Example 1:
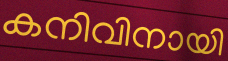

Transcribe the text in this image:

കനിവിനായി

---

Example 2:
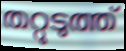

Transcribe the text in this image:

തറ്റുടുത്ത്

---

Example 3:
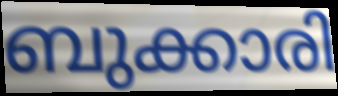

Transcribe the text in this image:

ബുക്കാരി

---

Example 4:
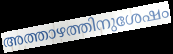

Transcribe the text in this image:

അത്താഴത്തിനുശേഷം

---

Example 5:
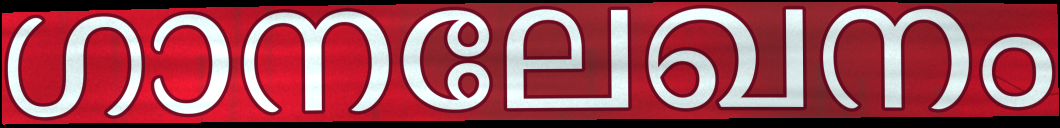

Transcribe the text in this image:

ഗാനലേഖനം